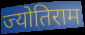
ज्योतिराम